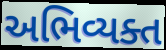
અભિવ્યક્ત